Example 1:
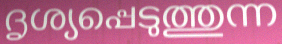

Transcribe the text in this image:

ദൃശ്യപ്പെടുത്തുന്ന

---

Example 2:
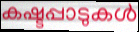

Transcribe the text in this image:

കഷ്ടപ്പാടുകൾ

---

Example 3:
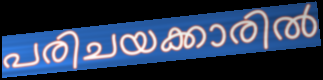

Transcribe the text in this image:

പരിചയക്കാരിൽ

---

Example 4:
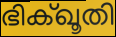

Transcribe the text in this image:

ഭിക്ഖൂതി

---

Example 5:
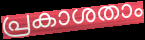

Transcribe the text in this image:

പ്രകാശതാം